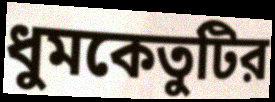
ধুমকেতুটির